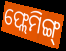
ଫ୍ଲେମିଙ୍ଗ୍